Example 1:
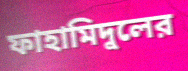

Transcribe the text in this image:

ফাহামিদুলের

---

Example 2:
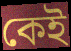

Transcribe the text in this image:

কেই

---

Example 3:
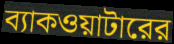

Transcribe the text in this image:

ব্যাকওয়াটারের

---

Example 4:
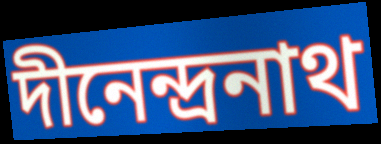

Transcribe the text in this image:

দীনেন্দ্রনাথ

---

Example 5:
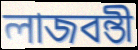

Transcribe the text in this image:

লাজবন্তী